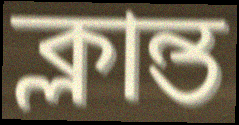
ক্লান্ত